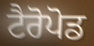
ਟੈਰੋਪੋਡ